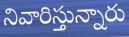
నివారిస్తున్నారు